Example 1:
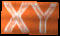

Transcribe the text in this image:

XY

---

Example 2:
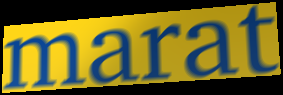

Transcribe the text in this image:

marat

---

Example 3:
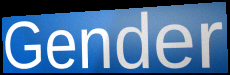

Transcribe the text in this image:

Gender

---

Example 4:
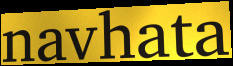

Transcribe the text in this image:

navhata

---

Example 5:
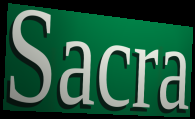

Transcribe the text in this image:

Sacra